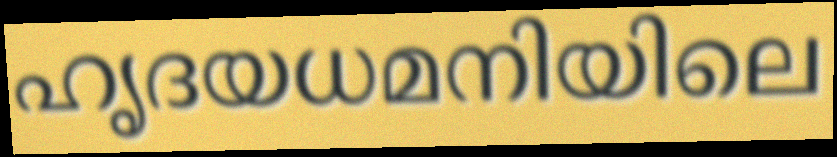
ഹൃദയധമനിയിലെ